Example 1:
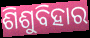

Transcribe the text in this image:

ଶିଶୁବିହାର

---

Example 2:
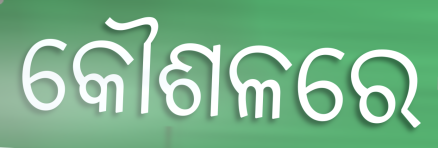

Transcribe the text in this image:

କୌଶଳରେ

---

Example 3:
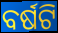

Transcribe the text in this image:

ବର୍ଷଟି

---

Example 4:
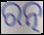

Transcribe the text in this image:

ରତ୍ନ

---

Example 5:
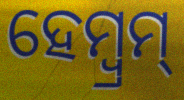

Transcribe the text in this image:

ହେମ୍ବ୍ରମ୍